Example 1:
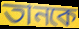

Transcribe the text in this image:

তানকে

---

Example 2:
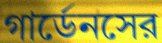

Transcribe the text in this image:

গার্ডেনসের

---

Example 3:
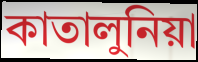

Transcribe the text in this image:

কাতালুনিয়া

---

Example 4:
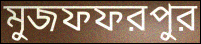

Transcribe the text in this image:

মুজফফরপুর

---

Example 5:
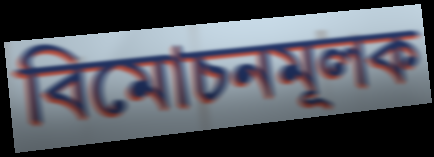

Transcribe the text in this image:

বিমোচনমূলক